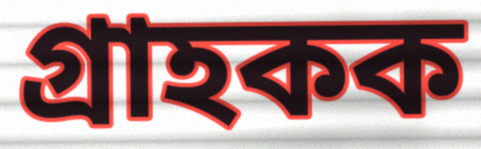
গ্ৰাহকক